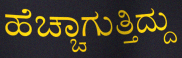
ಹೆಚ್ಚಾಗುತ್ತಿದ್ದು